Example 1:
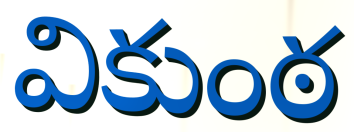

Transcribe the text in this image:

వికుంఠ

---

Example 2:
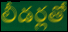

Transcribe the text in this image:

లీడర్లతో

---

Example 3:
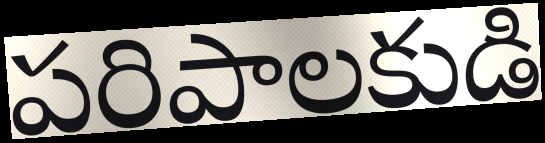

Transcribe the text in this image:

పరిపాలకుడి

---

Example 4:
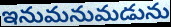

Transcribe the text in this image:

ఇనుమనుమడును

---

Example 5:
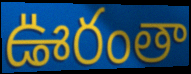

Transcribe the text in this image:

ఊరంతా